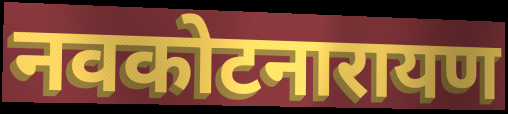
नवकोटनारायण